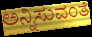
ಅನ್ನಿಸುವಂತೆ